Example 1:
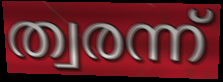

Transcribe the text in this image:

ത്വരന്ന്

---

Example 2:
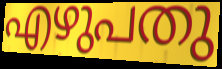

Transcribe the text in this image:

എഴുപതു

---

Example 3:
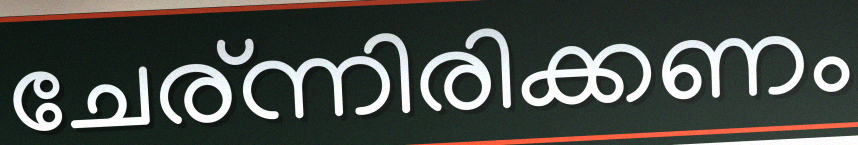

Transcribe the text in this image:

ചേര്ന്നിരിക്കണം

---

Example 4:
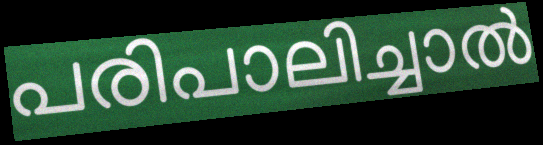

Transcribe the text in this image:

പരിപാലിച്ചാൽ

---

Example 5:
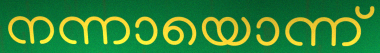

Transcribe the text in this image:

നന്നായൊന്ന്